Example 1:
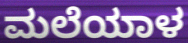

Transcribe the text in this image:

ಮಲೆಯಾಳ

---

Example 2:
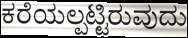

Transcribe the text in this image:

ಕರೆಯಲ್ಪಟ್ಟಿರುವುದು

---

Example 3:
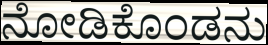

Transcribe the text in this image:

ನೋಡಿಕೊಂಡನು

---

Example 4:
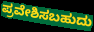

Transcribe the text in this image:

ಪ್ರವೇಶಿಸಬಹುದು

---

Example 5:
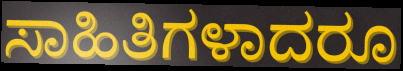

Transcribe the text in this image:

ಸಾಹಿತಿಗಳಾದರೂ